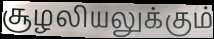
சூழலியலுக்கும்